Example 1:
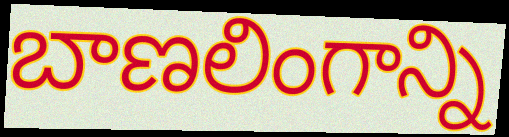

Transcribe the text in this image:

బాణలింగాన్ని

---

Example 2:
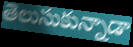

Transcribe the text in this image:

తెలుసుకున్నాడా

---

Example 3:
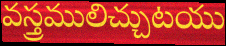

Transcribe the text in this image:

వస్త్రములిచ్చుటయు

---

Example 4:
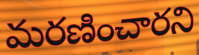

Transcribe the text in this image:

మరణించారని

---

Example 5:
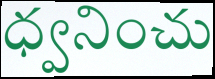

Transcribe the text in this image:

ధ్వనించు